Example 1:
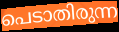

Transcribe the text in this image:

പെടാതിരുന്ന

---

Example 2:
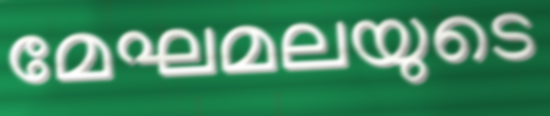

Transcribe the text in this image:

മേഘമലയുടെ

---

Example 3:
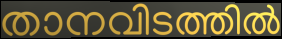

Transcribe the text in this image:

താനവിടത്തിൽ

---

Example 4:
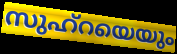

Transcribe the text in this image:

സുഹ്റയെയും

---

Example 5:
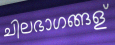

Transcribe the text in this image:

ചിലഭാഗങ്ങള്